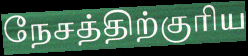
நேசத்திற்குரிய